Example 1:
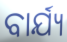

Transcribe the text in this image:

ବାର୍ଯ୍ୟ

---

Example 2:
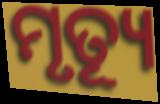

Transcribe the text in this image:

ମୃତ୍ୟୂ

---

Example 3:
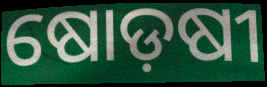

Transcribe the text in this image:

ଷୋଡ଼ଷୀ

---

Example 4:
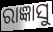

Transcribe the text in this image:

ରାଜ୍ଞାସୁ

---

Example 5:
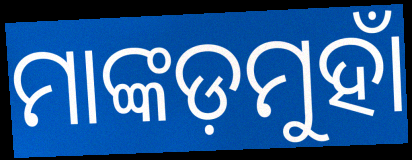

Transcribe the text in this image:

ମାଙ୍କଡ଼ମୁହାଁ